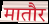
मातौर